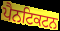
ਪੈਨਟਿਕਟਨ